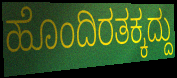
ಹೊಂದಿರತಕ್ಕದ್ದು